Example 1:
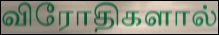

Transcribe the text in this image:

விரோதிகளால்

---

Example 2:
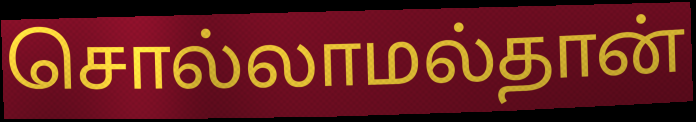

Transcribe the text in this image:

சொல்லாமல்தான்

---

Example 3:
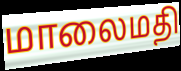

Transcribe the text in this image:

மாலைமதி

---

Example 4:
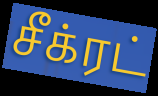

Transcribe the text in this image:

சீக்ரட்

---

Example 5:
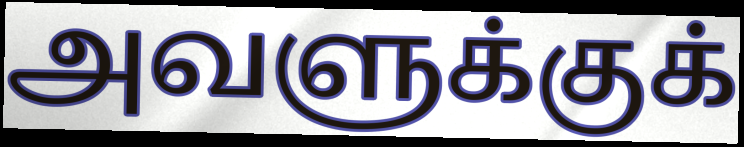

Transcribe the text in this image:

அவளுக்குக்